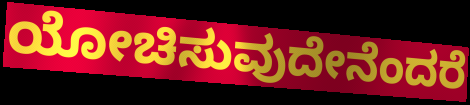
ಯೋಚಿಸುವುದೇನೆಂದರೆ